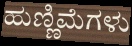
ಹುಣ್ಣಿಮೆಗಳು